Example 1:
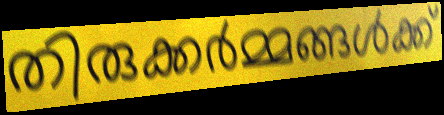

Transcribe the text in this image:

തിരുക്കർമ്മങ്ങൾക്ക്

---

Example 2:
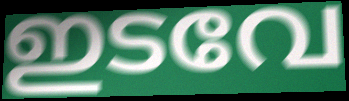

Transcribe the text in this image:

ഇടവേ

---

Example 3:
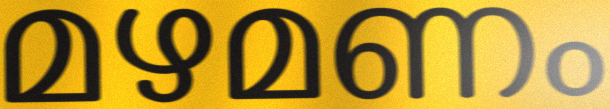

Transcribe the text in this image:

മഴമണം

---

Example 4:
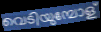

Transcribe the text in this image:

വെടിയുമ്പോള്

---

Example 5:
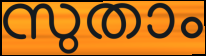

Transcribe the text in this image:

സുതാം